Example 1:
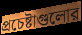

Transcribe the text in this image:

প্রচেষ্টাগুলোর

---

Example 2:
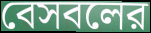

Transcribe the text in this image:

বেসবলের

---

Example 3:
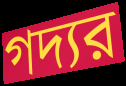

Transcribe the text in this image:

গদ্যর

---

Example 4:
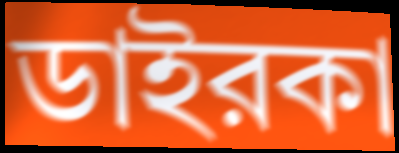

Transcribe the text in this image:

ডাইরকা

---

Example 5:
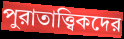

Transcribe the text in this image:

পুরাতাত্ত্বিকদের